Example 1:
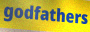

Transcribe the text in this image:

godfathers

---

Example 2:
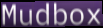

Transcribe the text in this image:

Mudbox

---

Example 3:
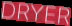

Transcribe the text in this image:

DRYER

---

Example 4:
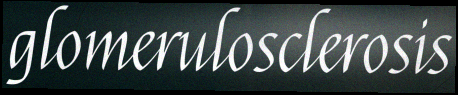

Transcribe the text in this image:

glomerulosclerosis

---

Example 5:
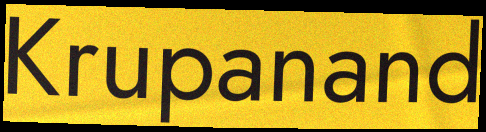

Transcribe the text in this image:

Krupanand